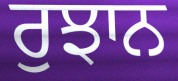
ਰੁਝਾਨ